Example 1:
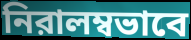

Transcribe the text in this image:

নিরালম্বভাবে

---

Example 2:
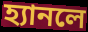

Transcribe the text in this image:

হ্যানলে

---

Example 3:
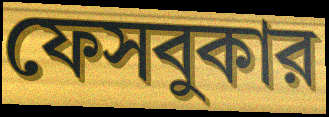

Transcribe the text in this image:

ফেসবুকার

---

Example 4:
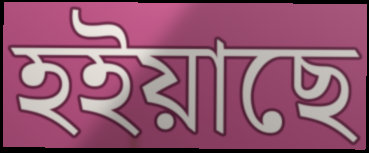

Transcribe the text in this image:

হইয়াছে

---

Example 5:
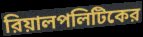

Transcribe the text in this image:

রিয়ালপলিটিকের